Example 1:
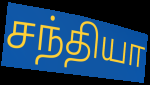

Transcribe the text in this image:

சந்தியா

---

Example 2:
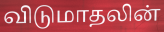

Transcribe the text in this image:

விடுமாதலின்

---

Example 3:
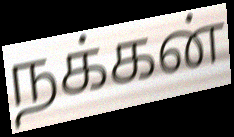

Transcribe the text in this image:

நக்கன்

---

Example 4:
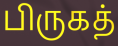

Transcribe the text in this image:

பிருகத்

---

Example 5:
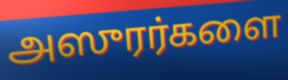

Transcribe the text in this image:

அஸுரர்களை